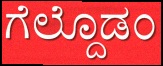
ಗೆಲ್ದೊಡಂ